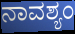
ನಾವಶ್ಯಂ